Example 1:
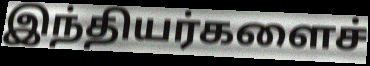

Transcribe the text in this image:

இந்தியர்களைச்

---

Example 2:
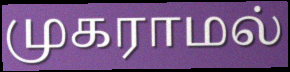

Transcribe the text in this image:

முகராமல்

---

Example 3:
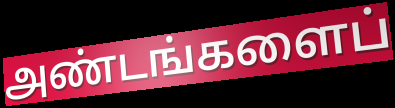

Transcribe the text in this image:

அண்டங்களைப்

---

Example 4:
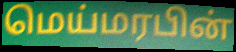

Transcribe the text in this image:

மெய்மரபின்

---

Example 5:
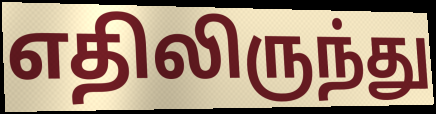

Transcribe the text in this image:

எதிலிருந்து